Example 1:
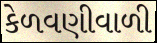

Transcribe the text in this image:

કેળવણીવાળી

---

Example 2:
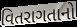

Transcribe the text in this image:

વિતરાગતાનો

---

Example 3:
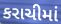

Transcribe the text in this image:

કરાચીમાં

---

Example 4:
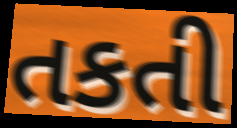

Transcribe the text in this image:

તકતી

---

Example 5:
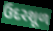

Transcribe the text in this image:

ઉદરશૂળ